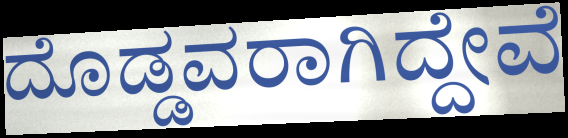
ದೊಡ್ಡವರಾಗಿದ್ದೇವೆ